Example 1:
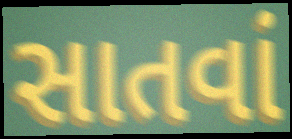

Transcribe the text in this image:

સાતવાં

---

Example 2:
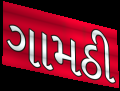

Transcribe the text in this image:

ગામઠી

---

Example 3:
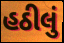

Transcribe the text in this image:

હઠીલું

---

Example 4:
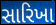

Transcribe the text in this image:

સારિખા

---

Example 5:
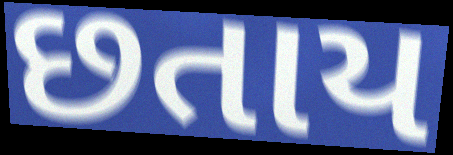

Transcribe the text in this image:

છતાય